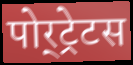
पोर्ट्रेटस